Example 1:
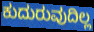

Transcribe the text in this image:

ಕುದುರುವುದಿಲ್ಲ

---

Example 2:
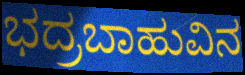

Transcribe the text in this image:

ಭದ್ರಬಾಹುವಿನ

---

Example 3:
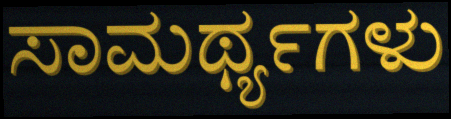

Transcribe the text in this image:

ಸಾಮರ್ಥ್ಯಗಳು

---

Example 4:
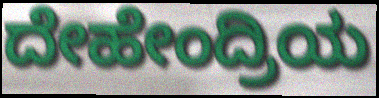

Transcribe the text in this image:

ದೇಹೇಂದ್ರಿಯ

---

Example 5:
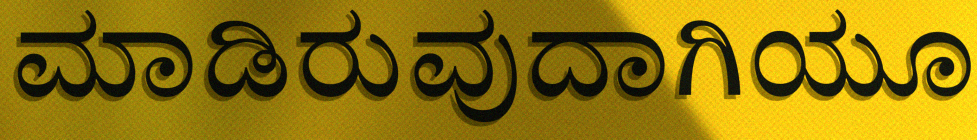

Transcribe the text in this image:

ಮಾಡಿರುವುದಾಗಿಯೂ